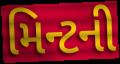
મિન્ટની